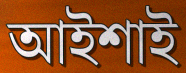
আইশাই